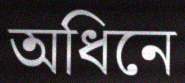
অধিনে